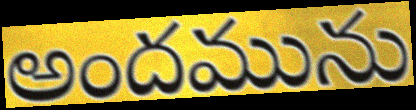
అందమును